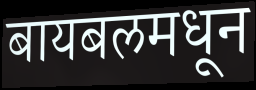
बायबलमधून